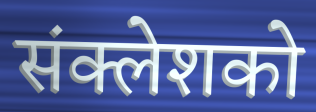
संक्लेशको